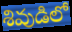
శివుడిలో